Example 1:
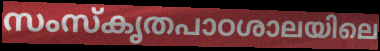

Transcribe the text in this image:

സംസ്കൃതപാഠശാലയിലെ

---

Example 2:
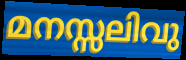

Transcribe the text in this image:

മനസ്സലിവു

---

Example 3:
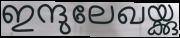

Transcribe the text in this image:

ഇന്ദുലേഖയ്ക്കു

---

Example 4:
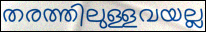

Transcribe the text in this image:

തരത്തിലുള്ളവയല്ല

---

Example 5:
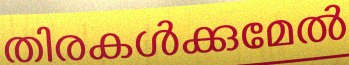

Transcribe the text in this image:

തിരകൾക്കുമേൽ